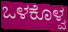
ಒಳಕೊಳ್ವ